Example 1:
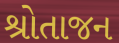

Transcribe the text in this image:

શ્રોતાજન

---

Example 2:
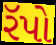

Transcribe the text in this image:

રૅપો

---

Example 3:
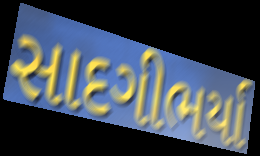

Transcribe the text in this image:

સાદગીભર્યા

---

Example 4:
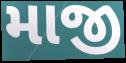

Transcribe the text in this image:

માજી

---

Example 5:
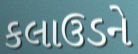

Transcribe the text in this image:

કલાઉડને